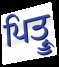
ਪਿਤ੍ਰੂ